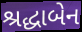
શ્રદ્ધાબેન